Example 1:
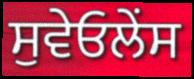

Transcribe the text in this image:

ਸੁਵੇਓਲੇਂਸ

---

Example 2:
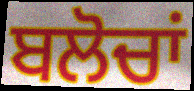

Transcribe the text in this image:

ਬਲੋਚਾਂ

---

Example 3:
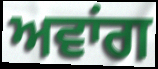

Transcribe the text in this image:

ਅਵਾਂਗ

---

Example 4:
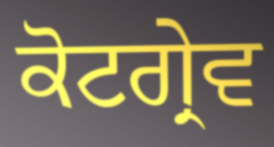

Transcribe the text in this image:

ਕੋਟਗ੍ਰੇਵ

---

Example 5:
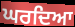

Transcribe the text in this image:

ਘਰਦਿਆ